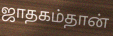
ஜாதகம்தான்